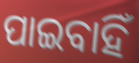
ପାଇବାହିଁ